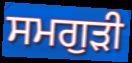
ਸਮਗੁੜੀ